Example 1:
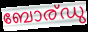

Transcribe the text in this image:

ബോര്ഡു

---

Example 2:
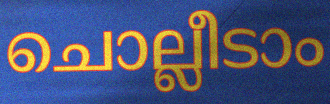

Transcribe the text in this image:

ചൊല്ലീടാം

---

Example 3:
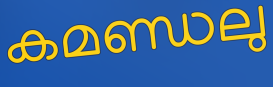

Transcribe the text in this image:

കമണ്ഡലു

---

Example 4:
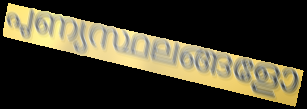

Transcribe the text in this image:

പുണ്യസ്ഥലങ്ങളോ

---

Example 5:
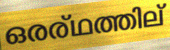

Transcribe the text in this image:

ഒരര്ഥത്തില്